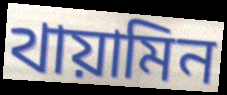
থায়ামিন